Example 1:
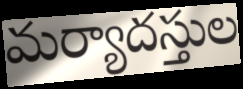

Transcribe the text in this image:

మర్యాదస్తుల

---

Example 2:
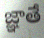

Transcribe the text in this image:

జ్ఞాతే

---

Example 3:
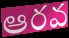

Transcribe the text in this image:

ఆరవ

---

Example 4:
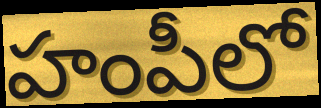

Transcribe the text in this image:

హంపీలో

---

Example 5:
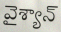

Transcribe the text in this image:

వైశ్యాన్